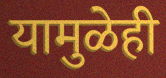
यामुळेही